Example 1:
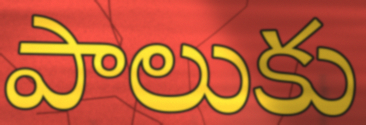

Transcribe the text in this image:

పాలుకు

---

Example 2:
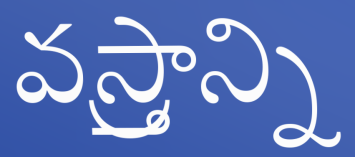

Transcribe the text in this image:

వస్ర్తాన్ని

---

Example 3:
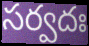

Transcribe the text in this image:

సర్వదః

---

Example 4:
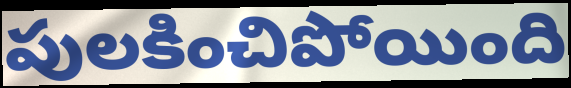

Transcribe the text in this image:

పులకించిపోయింది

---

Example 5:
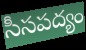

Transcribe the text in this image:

సీసపద్యం